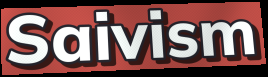
Saivism